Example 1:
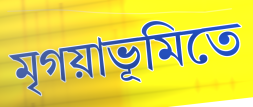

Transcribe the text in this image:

মৃগয়াভূমিতে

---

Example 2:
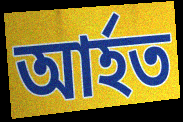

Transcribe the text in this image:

আর্হত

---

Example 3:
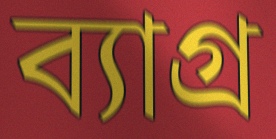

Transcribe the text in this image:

ব্যাগ্র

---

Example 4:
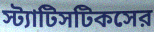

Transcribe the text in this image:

স্ট্যাটিসটিকসের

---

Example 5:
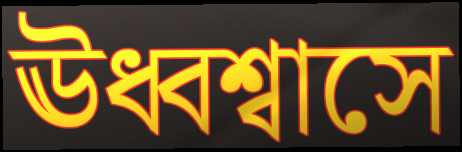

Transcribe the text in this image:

ঊধ্বশ্বাসে